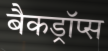
बैकड्रॉप्स